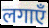
लगाएँ